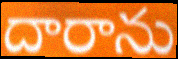
దారాను